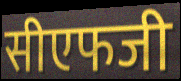
सीएफजी